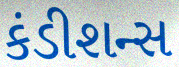
કંડીશન્સ